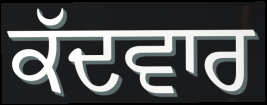
ਕੱਦਵਾਰ